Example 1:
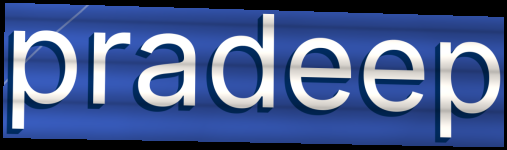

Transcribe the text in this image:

pradeep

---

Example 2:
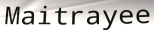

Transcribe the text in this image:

Maitrayee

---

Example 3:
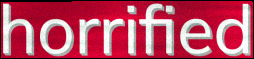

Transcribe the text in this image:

horrified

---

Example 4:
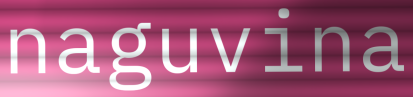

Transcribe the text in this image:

naguvina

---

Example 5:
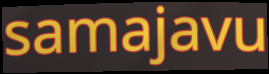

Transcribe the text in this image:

samajavu